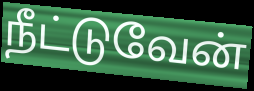
நீட்டுவேன்